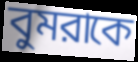
বুমরাকে